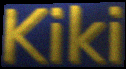
Kiki